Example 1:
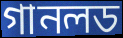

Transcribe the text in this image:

গানলড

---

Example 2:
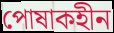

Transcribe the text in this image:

পোষাকহীন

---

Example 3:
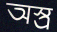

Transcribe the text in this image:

অস্ত্র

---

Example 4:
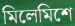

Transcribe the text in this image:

মিলেমিশে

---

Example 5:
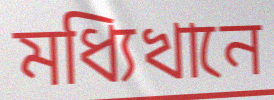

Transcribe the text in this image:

মধ্যিখানে